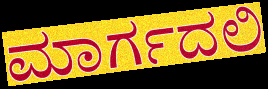
ಮಾರ್ಗದಲಿ